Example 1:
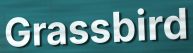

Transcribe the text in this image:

Grassbird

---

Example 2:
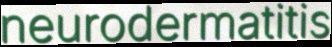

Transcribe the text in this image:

neurodermatitis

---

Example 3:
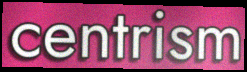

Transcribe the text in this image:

centrism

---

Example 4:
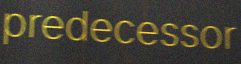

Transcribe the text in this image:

predecessor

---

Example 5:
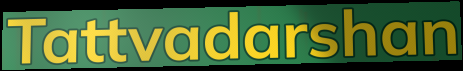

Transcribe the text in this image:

Tattvadarshan